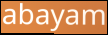
abayam